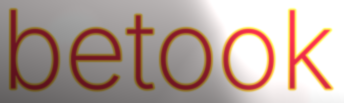
betook